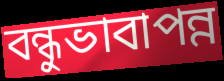
বন্ধুভাবাপন্ন